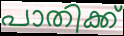
പാതിക്ക്